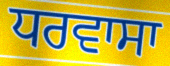
ਧਰਵਾਸਾ